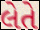
લેતે